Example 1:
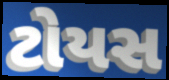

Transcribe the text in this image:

ટોયસ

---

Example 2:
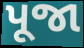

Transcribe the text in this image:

પૂજા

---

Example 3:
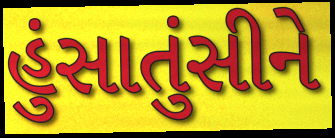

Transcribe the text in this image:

હુંસાતુંસીને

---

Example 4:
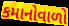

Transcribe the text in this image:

કમાનોવાળો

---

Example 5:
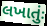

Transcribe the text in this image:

લખાતુંઃ